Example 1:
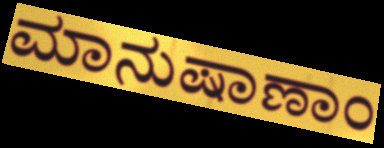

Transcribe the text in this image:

ಮಾನುಷಾಣಾಂ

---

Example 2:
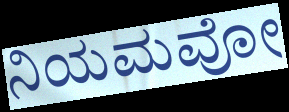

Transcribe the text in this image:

ನಿಯಮವೋ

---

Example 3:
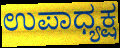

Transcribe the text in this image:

ಉಪಾಧ್ಯಕ್ಷ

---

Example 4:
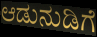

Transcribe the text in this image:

ಆಡುನುಡಿಗೆ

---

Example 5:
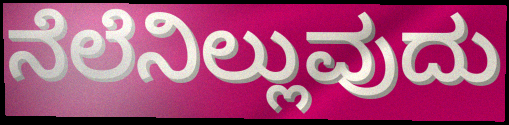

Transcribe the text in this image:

ನೆಲೆನಿಲ್ಲುವುದು